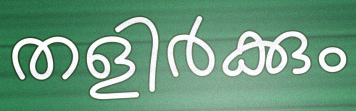
തളിർക്കും